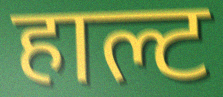
हाल्ट